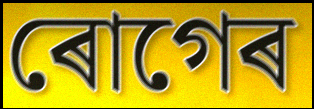
ৰোগেৰ